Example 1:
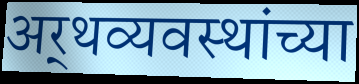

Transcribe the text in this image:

अर्थव्यवस्थांच्या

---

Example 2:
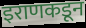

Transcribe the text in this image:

इराणकडून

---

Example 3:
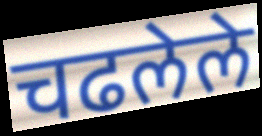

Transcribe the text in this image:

चढलेले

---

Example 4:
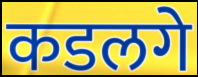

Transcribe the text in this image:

कडलगे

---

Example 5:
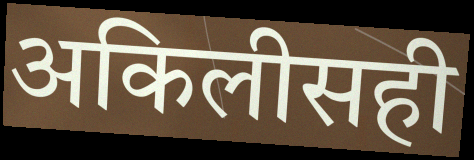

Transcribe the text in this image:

अकिलीसही